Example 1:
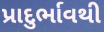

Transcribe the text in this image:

પ્રાદુર્ભાવથી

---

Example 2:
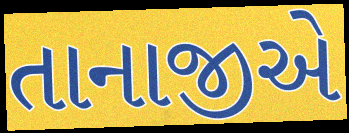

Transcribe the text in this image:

તાનાજીએ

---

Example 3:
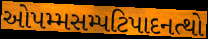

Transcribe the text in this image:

ઓપમ્મસમ્પટિપાદનત્થો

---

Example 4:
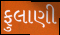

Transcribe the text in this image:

ફુલાણી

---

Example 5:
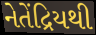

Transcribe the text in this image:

નેતેંદ્રિયથી